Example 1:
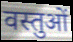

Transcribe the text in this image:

वस्तुओं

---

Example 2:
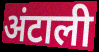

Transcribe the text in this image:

अंटाली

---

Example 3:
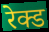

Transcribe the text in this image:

रेक्ड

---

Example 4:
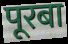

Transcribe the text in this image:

पूरबा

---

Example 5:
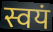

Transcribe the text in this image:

स्‍वयं